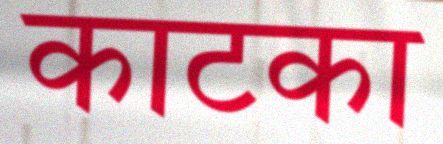
काटका